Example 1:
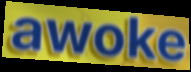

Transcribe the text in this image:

awoke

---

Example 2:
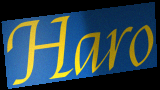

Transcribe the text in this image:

Haro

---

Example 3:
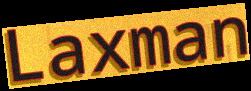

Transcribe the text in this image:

Laxman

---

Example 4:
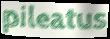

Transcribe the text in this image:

pileatus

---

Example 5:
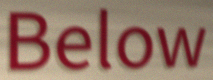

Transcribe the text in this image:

Below